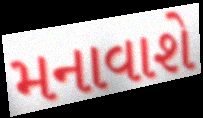
મનાવાશે